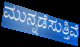
ಮುನ್ನಡೆಸುತ್ತಿವೆ